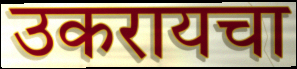
उकरायचा